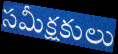
సమీక్షకులు